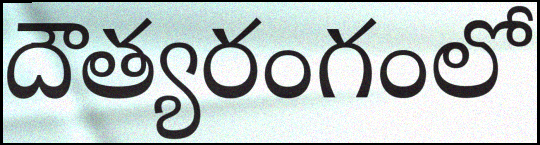
దౌత్యరంగంలో